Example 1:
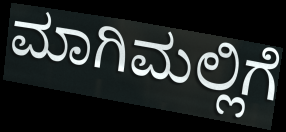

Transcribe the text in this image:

ಮಾಗಿಮಲ್ಲಿಗೆ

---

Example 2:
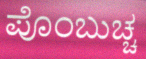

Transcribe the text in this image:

ಪೊಂಬುಚ್ಚ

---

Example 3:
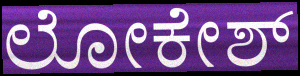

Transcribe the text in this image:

ಲೋಕೇಶ್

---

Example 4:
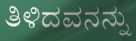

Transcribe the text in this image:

ತಿಳಿದವನನ್ನು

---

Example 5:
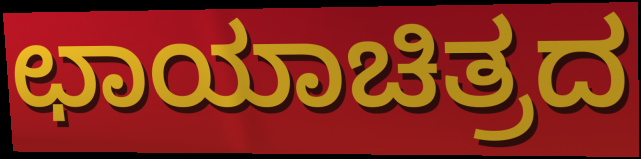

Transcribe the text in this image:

ಛಾಯಾಚಿತ್ರದ